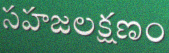
సహజలక్షణం